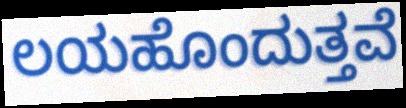
ಲಯಹೊಂದುತ್ತವೆ